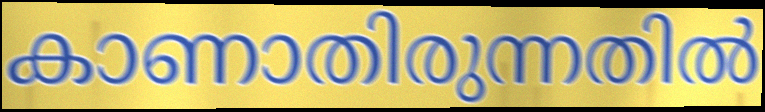
കാണാതിരുന്നതിൽ